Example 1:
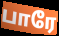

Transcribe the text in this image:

பாரே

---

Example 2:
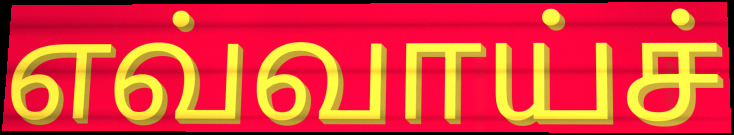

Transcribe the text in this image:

எவ்வாய்ச்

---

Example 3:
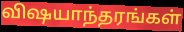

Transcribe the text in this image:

விஷயாந்தரங்கள்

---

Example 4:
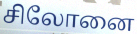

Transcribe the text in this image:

சிலோனை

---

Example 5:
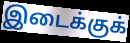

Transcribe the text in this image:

இடைக்குக்